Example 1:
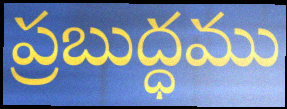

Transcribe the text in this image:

ప్రబుద్ధము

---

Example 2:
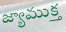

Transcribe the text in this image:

జ్యాముక్త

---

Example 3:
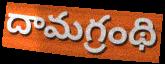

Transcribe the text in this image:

దామగ్రంథి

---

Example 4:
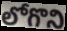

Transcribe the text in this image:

లోగొని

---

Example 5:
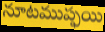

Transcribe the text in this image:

నూటముప్ఫయి